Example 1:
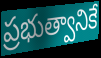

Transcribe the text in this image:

ప్రభుత్వానికే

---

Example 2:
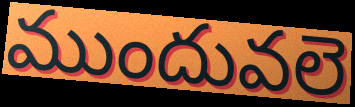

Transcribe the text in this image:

ముందువలె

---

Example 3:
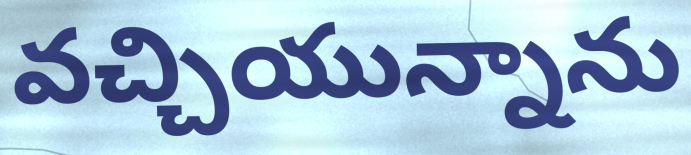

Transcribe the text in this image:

వచ్చియున్నాను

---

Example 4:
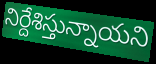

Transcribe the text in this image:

నిర్దేశిస్తున్నాయని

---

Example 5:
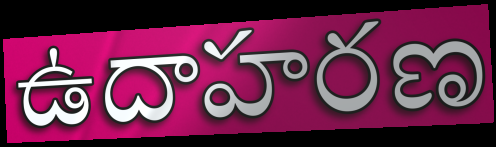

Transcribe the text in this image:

ఉదాహరణ